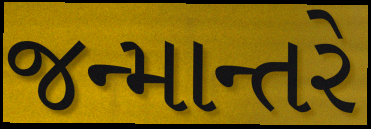
જન્માન્તરે